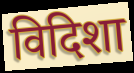
विदिशा